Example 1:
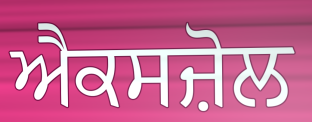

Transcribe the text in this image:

ਐਕਸਜ਼ੋਲ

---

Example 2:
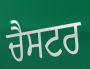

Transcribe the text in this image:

ਚੈਸਟਰ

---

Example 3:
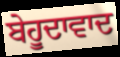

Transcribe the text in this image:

ਬੇਹੂਦਾਵਾਦ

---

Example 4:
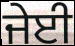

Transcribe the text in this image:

ਜੇਈ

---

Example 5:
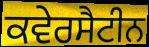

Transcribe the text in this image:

ਕਵੇਰਸੈਟੀਨ